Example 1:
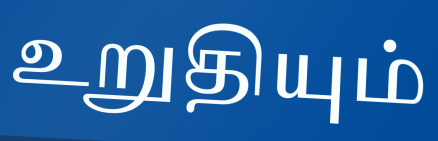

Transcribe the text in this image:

உறுதியும்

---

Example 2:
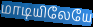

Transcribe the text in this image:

மாடியிலேயே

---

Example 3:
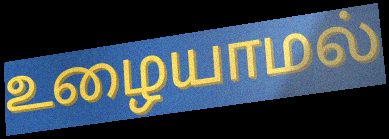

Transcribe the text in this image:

உழையாமல்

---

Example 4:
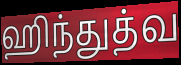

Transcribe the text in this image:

ஹிந்துத்வ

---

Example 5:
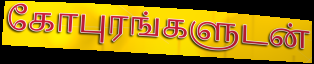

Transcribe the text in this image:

கோபுரங்களுடன்